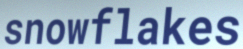
snowflakes